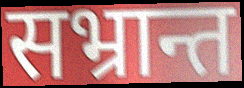
सभ्रान्त